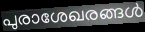
പുരാശേഖരങ്ങൾ